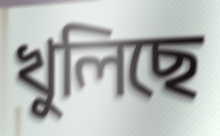
খুলিছে